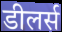
डीलर्स